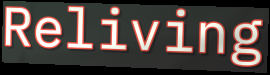
Reliving